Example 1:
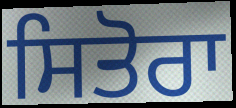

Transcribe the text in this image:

ਸਿਤੋਰਾ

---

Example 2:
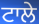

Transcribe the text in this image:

ਟਾਲੇ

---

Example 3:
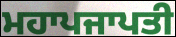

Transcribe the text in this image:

ਮਹਾਪਜਾਪਤੀ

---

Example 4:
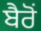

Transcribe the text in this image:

ਬੈਰੋਂ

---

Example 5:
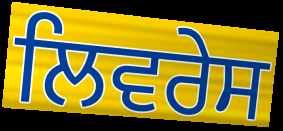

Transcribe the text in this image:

ਲਿਵਰੇਸ